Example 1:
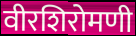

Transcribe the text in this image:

वीरशिरोमणी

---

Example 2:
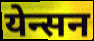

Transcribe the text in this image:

येन्सन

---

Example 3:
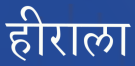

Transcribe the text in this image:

हीराला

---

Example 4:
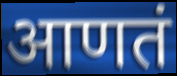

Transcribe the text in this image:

आणतं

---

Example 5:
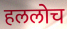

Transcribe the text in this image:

हललोच